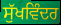
ਸੁੱਖਵਿੰਦਰ